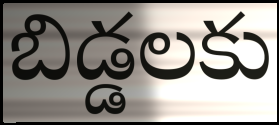
బిడ్డలకు